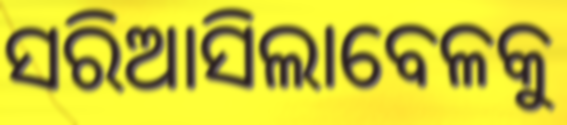
ସରିଆସିଲାବେଳକୁ